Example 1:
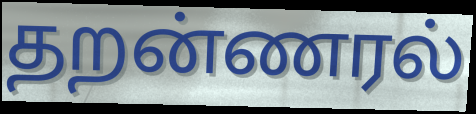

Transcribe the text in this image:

தறன்ணரல்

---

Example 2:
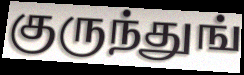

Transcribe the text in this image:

குருந்துங்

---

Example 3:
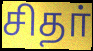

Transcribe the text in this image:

சிதர்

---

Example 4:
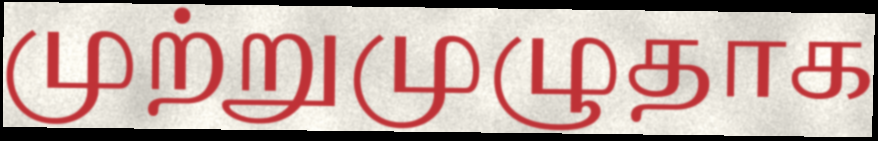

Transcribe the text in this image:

முற்றுமுழுதாக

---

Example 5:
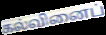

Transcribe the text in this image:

கல்வினைப்